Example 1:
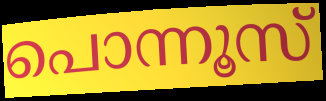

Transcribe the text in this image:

പൊന്നൂസ്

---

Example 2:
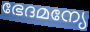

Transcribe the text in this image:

ഭേദമന്യേ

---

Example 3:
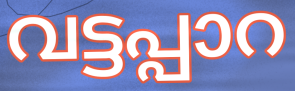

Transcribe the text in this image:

വട്ടപ്പാറ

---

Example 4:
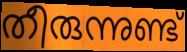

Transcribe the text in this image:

തീരുന്നുണ്ട്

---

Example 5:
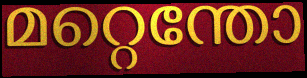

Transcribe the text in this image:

മറ്റെന്തോ